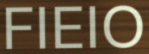
FIEIO